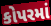
કોપરમાં